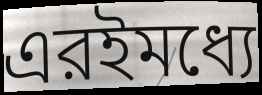
এরইমধ্যে